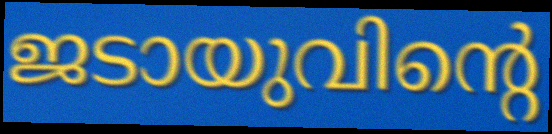
ജടായുവിന്റെ